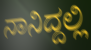
ನಾನಿದ್ದಲ್ಲಿ